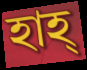
হাহ্